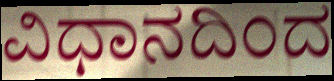
ವಿಧಾನದಿಂದ